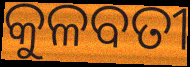
କୁଳବତୀ